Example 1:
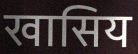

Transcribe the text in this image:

खासिय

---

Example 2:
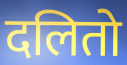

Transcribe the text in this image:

दलितो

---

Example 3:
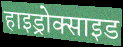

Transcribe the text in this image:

हाइड्रोक्साइड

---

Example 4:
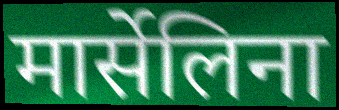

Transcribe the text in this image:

मार्सेलिना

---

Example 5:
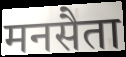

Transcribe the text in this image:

मनसैता